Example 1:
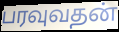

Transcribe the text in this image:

பரவுவதன்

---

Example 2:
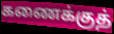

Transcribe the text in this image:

கணைக்குத்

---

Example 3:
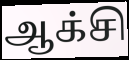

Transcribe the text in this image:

ஆக்சி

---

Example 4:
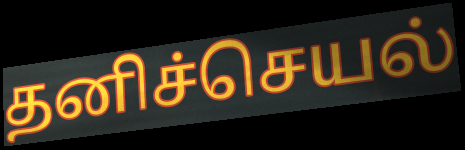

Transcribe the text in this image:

தனிச்செயல்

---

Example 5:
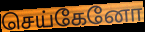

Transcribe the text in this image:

செய்கேனோ